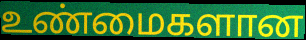
உண்மைகளான